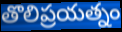
తొలిప్రయత్నం